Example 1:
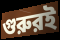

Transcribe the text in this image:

গুরুরই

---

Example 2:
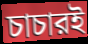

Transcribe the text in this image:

চাচারই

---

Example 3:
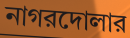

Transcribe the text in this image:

নাগরদোলার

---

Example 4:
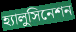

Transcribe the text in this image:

হ্যালুসিনেশন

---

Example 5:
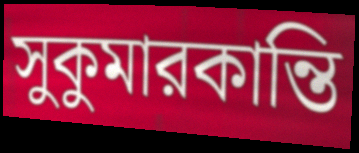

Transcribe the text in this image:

সুকুমারকান্তি